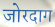
जोरदाग